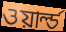
ওয়ার্ল্ড